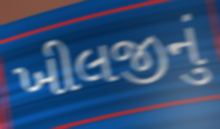
ખીલજીનું